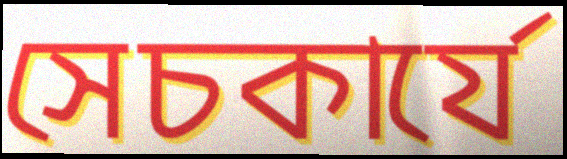
সেচকার্যে